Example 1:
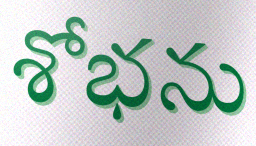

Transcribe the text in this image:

శోభను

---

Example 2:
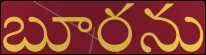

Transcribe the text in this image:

బూరను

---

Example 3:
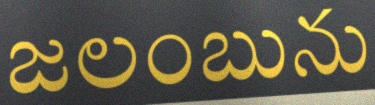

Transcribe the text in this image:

జలంబును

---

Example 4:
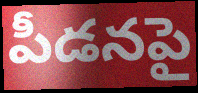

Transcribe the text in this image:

పీడనపై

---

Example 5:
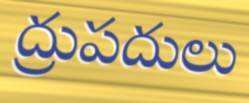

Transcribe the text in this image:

ద్రుపదులు